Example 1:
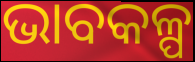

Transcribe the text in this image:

ଭାବକଳ୍ପ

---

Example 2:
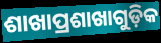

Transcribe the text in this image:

ଶାଖାପ୍ରଶାଖାଗୁଡ଼ିକ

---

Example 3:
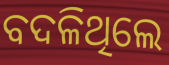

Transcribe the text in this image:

ବଦଳିଥିଲେ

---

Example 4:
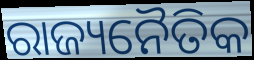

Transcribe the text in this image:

ରାଜ୍ୟନୈତିକ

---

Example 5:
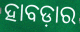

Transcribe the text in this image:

ହାବଡ଼ାର